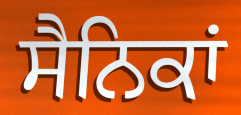
ਸੈਨਿਕਾਂ